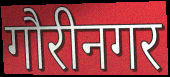
गौरीनगर